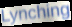
Lynching